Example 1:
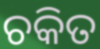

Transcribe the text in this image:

ଚକିତ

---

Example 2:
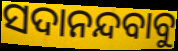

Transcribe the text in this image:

ସଦାନନ୍ଦବାବୁ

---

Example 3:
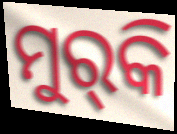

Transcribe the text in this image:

ମୁର୍‌କି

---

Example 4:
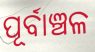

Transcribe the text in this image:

ପୂର୍ବାଞ୍ଚଳ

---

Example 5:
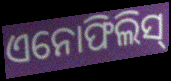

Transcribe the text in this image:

ଏନୋଫିଲିସ୍